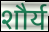
शौर्य